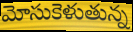
మోసుకెళుతున్న